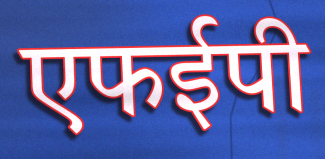
एफईपी